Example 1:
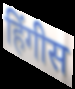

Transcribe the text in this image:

हिंगीस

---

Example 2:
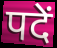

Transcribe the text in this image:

पदें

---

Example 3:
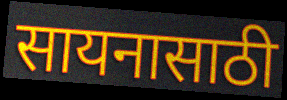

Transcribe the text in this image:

सायनासाठी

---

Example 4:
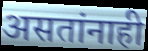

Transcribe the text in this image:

असतांनाही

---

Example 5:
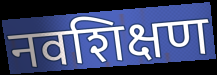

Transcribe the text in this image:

नवशिक्षण